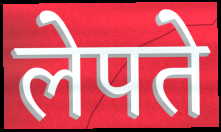
लेपते